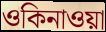
ওকিনাওয়া